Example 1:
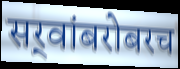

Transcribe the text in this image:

सर्वांबरोबरच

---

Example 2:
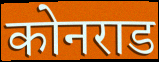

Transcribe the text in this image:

कोनराड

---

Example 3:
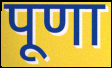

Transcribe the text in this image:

पूणा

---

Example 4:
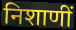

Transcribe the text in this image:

निशाणीं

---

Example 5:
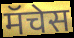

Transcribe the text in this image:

मॅचेस